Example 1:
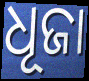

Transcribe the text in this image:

ଧୂଜା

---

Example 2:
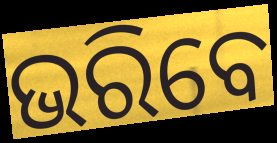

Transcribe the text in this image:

ଭରିବେ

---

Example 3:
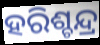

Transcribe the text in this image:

ହରିଶ୍ଚନ୍ଦ୍ର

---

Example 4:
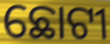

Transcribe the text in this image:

ଛୋଟୀ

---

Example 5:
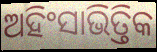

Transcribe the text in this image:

ଅହିଂସାଭିତ୍ତିକ